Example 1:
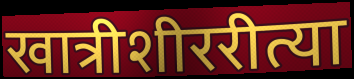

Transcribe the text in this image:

खात्रीशीररीत्या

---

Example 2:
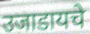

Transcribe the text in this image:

उजाडायचे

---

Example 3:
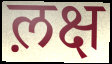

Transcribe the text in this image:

ल़क्ष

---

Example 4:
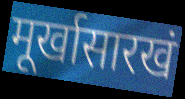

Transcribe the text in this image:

मूर्खासारखं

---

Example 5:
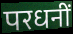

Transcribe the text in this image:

परधनीं